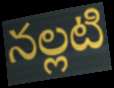
నల్లటి